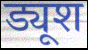
ड्यूश